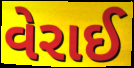
વેરાઈ